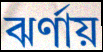
ঝর্ণায়